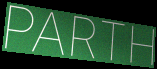
PARTH